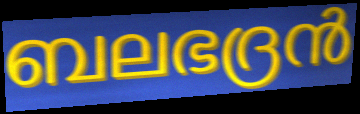
ബലഭദ്രൻ